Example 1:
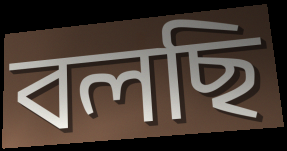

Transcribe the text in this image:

বলছি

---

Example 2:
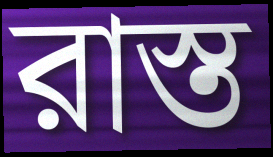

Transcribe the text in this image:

রাস্ত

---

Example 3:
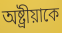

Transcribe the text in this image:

অষ্ট্রীয়াকে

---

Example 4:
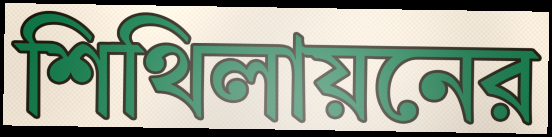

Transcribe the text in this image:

শিথিলায়নের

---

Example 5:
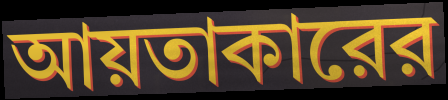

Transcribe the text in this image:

আয়তাকারের